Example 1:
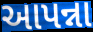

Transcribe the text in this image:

આપન્ના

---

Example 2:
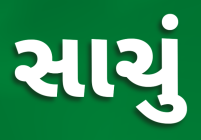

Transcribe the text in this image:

સાચું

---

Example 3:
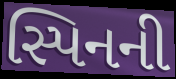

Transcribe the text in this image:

સ્પિનની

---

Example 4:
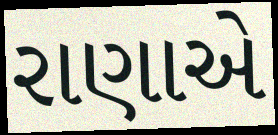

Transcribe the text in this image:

રાણાએ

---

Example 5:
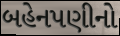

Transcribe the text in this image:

બહેનપણીનો